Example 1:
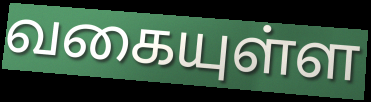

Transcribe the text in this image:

வகையுள்ள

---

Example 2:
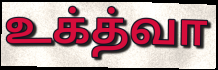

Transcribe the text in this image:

உக்த்வா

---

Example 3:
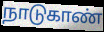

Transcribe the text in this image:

நாடுகாண்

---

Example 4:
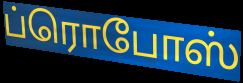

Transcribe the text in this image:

ப்ரொபோஸ்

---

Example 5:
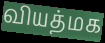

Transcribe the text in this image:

வியத்மக